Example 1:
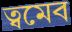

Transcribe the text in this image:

ত্বমেব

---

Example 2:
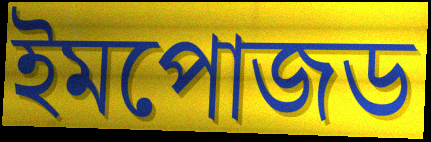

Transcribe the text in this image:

ইমপোজড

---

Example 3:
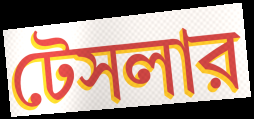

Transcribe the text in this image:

টেসলার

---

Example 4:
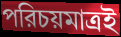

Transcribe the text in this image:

পরিচয়মাত্রই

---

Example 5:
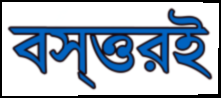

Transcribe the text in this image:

বস্ত্তরই